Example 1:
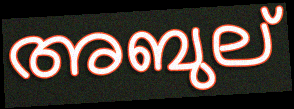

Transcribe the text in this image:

അബുല്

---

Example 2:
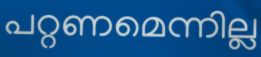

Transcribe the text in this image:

പറ്റണമെന്നില്ല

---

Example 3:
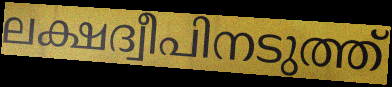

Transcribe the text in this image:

ലക്ഷദ്വീപിനടുത്ത്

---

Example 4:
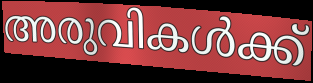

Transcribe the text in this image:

അരുവികൾക്ക്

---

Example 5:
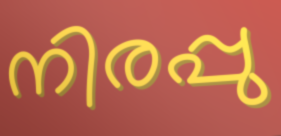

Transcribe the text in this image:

നിരപ്പു